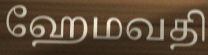
ஹேமவதி